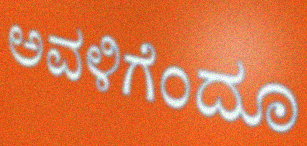
ಅವಳಿಗೆಂದೂ